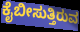
ಕೈಬೀಸುತ್ತಿರುವ